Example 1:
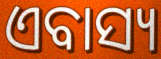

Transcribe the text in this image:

ଏବାସ୍ୟ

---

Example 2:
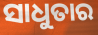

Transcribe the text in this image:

ସାଧୁତାର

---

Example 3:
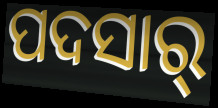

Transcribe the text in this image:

ପଦସାର୍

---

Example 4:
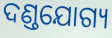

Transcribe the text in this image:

ଦଣ୍ଡଯୋଗ୍ୟ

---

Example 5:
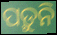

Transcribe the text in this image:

ପଡ଼ୁନି